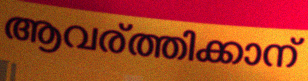
ആവര്ത്തിക്കാന്